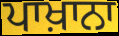
ਪਾਖ਼ਾਨਾ